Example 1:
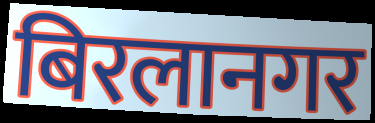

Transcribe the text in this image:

बिरलानगर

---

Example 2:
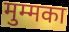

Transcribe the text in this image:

मुम्मका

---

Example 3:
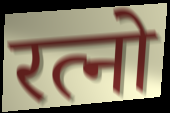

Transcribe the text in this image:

रत्नो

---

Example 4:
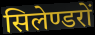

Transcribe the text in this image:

सिलेण्डरों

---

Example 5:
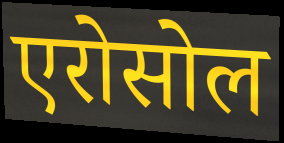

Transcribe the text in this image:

एरोसोल